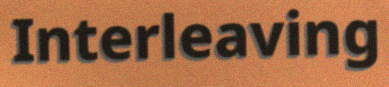
Interleaving